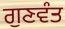
ਗੁਣਵੰਤ